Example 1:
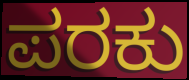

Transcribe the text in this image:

ಪರಕು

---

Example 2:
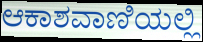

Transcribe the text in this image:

ಆಕಾಶವಾಣಿಯಲ್ಲಿ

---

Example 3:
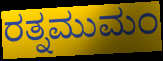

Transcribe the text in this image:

ರತ್ನಮುಮಂ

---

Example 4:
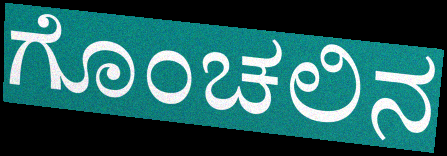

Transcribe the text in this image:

ಗೊಂಚಲಿನ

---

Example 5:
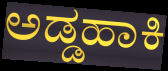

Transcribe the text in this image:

ಅಡ್ಡಹಾಕಿ